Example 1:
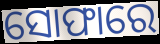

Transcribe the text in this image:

ସୋଫାରେ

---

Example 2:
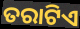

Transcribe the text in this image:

ତରାଟିଏ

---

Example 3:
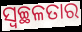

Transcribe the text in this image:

ସ୍ଵଚ୍ଛଳତାର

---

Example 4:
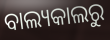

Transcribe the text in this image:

ବାଲ୍ୟକାଲରୁ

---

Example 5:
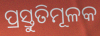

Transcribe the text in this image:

ପ୍ରସ୍ତୁତିମୂଳକ